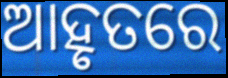
ଆହୃତରେ